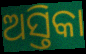
ଅସ୍ତିକା